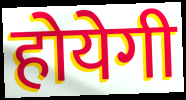
होयेगी